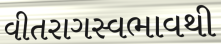
વીતરાગસ્વભાવથી